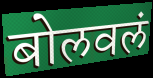
बोलवलं